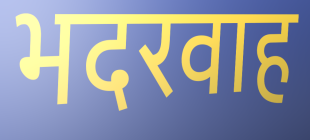
भदरवाह